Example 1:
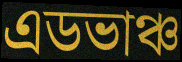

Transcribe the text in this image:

এডভাঞ্চ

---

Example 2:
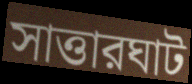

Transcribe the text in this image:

সাত্তারঘাট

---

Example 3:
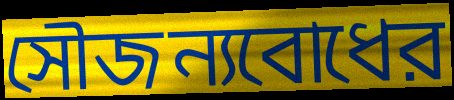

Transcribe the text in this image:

সৌজন্যবোধের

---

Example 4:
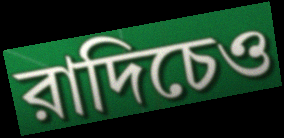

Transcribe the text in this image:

রাদিচেও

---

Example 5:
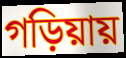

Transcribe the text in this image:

গড়িয়ায়